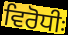
ਵਿਰੋਧੀਃ